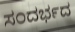
ಸಂದರ್ಭದ